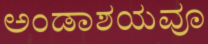
ಅಂಡಾಶಯವೂ